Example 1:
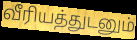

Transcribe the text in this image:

வீரியத்துடனும்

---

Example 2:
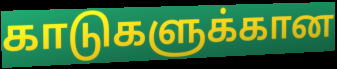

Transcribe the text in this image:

காடுகளுக்கான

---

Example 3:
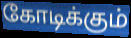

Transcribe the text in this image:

கோடிக்கும்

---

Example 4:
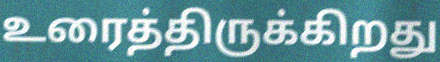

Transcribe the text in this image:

உரைத்திருக்கிறது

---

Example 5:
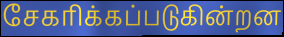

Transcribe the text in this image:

சேகரிக்கப்படுகின்றன